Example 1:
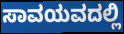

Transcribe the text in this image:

ಸಾವಯವದಲ್ಲಿ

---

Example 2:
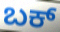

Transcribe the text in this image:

ಬಕ್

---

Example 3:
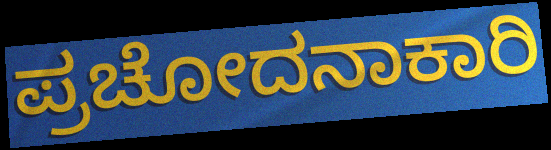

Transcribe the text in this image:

ಪ್ರಚೋದನಾಕಾರಿ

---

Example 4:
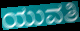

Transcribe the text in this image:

ಯುವತಿ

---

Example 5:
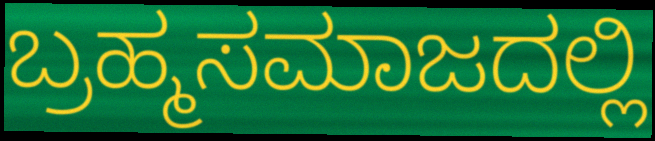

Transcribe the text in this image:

ಬ್ರಹ್ಮಸಮಾಜದಲ್ಲಿ